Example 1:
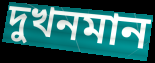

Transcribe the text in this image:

দুখনমান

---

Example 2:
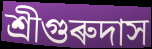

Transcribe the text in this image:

শ্ৰীগুৰুদাস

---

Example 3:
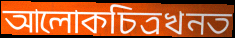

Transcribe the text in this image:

আলোকচিত্ৰখনত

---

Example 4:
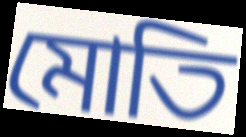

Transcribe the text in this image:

মোতি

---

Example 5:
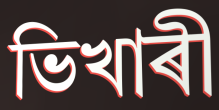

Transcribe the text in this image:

ভিখাৰী